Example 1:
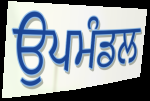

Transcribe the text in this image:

ਉਪਮੰਡਲ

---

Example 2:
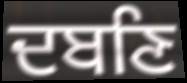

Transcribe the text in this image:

ਦਬਣਿ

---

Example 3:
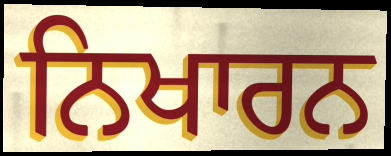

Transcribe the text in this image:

ਨਿਖਾਰਨ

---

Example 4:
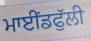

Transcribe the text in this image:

ਮਾਈਂਡਫੁੱਲੀ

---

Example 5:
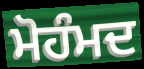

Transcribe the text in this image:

ਮੋਹੰਮਦ